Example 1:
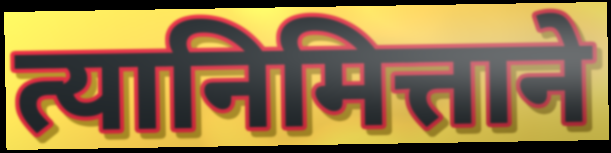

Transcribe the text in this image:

त्यानिमित्ताने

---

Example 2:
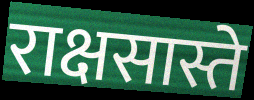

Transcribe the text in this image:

राक्षसास्ते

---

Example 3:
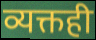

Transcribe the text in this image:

व्यक्तही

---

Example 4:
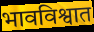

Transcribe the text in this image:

भावविश्वात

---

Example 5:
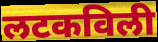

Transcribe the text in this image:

लटकविली